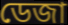
ডেজা